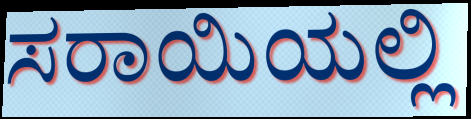
ಸರಾಯಿಯಲ್ಲಿ